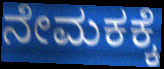
ನೇಮಕಕ್ಕೆ